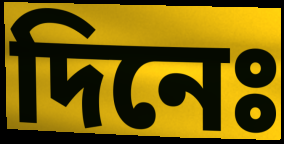
দিনেঃ